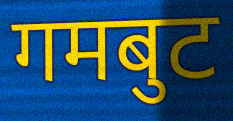
गमबुट